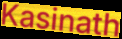
Kasinath